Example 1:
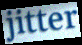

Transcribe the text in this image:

jitter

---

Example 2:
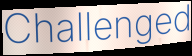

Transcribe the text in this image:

Challenged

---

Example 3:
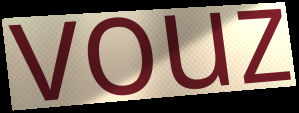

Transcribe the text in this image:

vouz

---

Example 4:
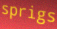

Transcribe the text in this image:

sprigs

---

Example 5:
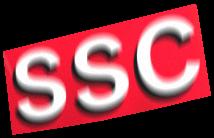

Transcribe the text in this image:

ssc